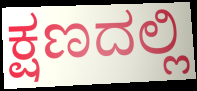
ಕ್ಷಣದಲ್ಲಿ